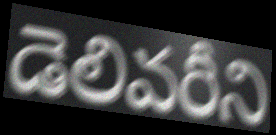
డెలివరీని